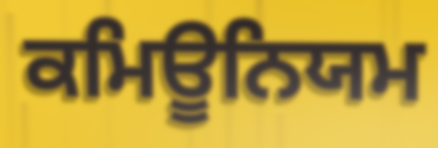
ਕਮਿਊਨਿਯਮ